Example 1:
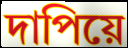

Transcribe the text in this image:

দাপিয়ে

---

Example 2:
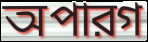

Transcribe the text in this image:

অপারগ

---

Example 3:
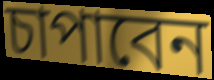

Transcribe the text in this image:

চাপাবেন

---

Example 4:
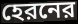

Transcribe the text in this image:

হেরনের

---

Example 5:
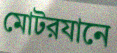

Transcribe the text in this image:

মোটরযানে